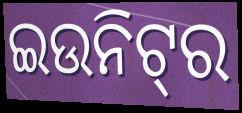
ଇଉନିଟ୍‍ର